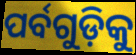
ପର୍ବଗୁଡ଼ିକୁ